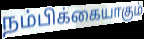
நம்பிக்கையாகும்